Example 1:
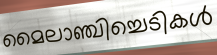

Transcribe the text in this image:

മൈലാഞ്ചിച്ചെടികൾ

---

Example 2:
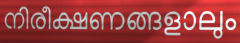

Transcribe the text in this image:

നിരീക്ഷണങ്ങളാലും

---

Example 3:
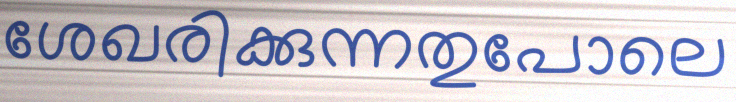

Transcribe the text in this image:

ശേഖരിക്കുന്നതുപോലെ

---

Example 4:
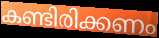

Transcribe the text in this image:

കണ്ടിരിക്കണം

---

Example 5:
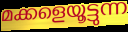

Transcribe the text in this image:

മക്കളെയൂട്ടുന്ന